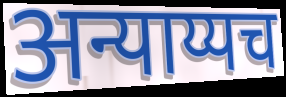
अन्याय्यच